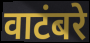
वाटंबरे